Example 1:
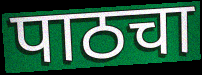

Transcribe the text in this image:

पाठचा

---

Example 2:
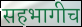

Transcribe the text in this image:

सहभागीच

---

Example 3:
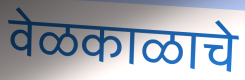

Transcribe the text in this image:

वेळकाळाचे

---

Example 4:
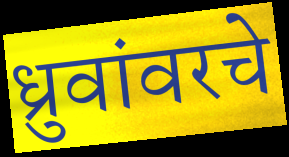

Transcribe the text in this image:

ध्रुवांवरचे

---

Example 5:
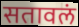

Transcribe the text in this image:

सतावलं